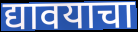
द्यावयाचा